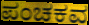
ಪಂಚಕವ